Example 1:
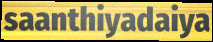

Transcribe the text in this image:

saanthiyadaiya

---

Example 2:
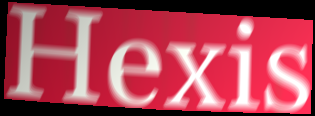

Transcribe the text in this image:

Hexis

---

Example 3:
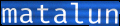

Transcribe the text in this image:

matalun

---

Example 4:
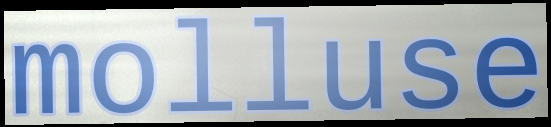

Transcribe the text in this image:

molluse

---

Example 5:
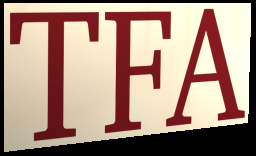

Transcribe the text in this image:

TFA